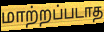
மாற்றப்படாத